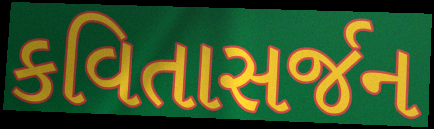
કવિતાસર્જન